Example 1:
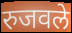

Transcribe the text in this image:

रुजवले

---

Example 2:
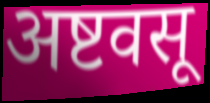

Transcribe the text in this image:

अष्टवसू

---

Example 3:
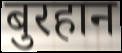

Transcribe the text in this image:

बुरहान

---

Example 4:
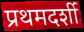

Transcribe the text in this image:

प्रथमदर्शी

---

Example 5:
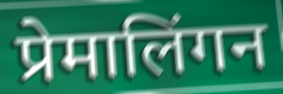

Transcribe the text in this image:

प्रेमालिंगन